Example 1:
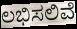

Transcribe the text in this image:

ಲಭಿಸಲಿವೆ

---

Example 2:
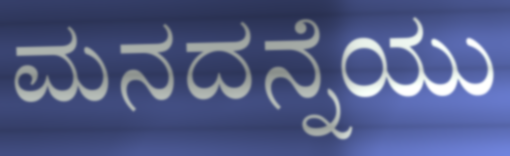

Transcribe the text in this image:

ಮನದನ್ನೆಯು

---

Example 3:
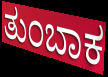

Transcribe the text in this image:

ತುಂಬಾಕ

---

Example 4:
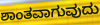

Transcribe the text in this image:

ಶಾಂತವಾಗುವುದು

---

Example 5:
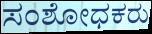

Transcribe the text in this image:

ಸಂಶೋಧಕರು